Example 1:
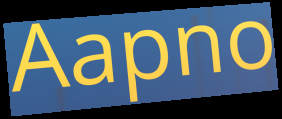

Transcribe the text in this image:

Aapno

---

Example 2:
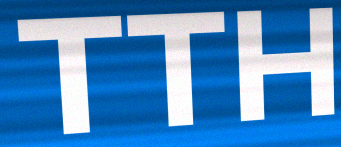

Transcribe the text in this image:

TTH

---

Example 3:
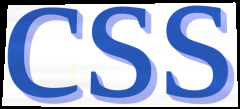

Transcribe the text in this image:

css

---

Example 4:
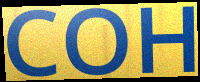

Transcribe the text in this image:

COH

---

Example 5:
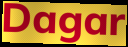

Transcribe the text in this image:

Dagar